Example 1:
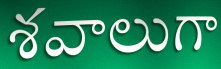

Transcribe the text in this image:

శవాలుగా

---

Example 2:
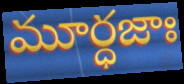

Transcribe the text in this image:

మూర్ధజాః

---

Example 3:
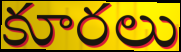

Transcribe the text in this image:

కూరలు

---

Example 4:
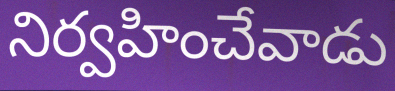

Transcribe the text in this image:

నిర్వహించేవాడు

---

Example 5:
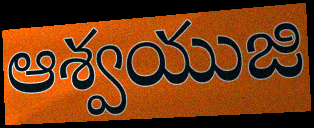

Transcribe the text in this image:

ఆశ్వయుజి